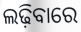
ଲଢ଼ିବାରେ